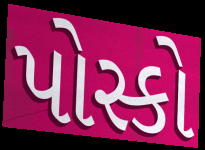
પોસ્કો